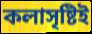
কলাসৃষ্টিই